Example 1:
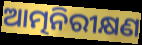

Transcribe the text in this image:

ଆତ୍ମନିରୀକ୍ଷଣ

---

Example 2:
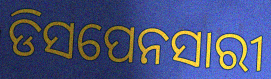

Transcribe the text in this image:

ଡିସପେନସାରୀ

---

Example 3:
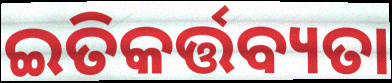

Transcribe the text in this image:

ଇତିକର୍ତ୍ତବ୍ୟତା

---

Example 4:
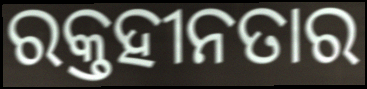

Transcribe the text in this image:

ରକ୍ତହୀନତାର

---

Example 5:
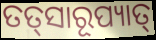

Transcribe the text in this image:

ତତ୍‌ସାରୂପ୍ୟାତ୍